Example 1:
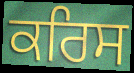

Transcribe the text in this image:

ਕਰਿਸ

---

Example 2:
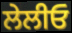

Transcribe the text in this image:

ਲੇਲੀਓ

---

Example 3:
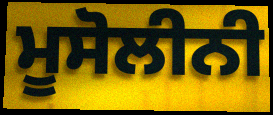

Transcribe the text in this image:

ਮੂਸੋਲੀਨੀ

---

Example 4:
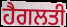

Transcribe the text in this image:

ਹੈਗਲਤੀ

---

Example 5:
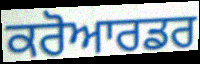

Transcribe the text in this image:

ਕਰੋਆਰਡਰ